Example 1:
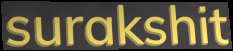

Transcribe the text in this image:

surakshit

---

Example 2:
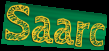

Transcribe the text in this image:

Saarc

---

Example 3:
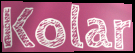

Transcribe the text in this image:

Kolar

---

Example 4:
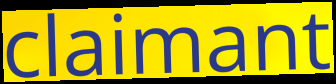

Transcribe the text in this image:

claimant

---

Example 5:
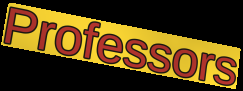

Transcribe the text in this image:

Professors